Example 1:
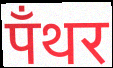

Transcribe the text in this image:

पँथर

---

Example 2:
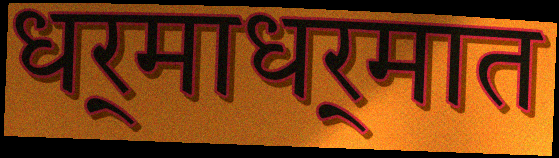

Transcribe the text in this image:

धर्माधर्मात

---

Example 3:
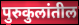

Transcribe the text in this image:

पुरुकुलांतील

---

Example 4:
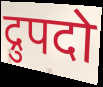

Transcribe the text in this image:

द्रुपदो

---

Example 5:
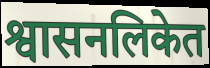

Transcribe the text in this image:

श्वासनलिकेत